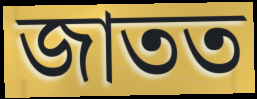
জাতত